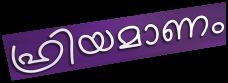
ഹ്രിയമാണം